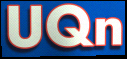
UQn